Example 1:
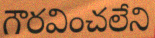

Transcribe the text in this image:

గౌరవించలేని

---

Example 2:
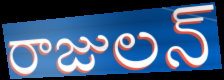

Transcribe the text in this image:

రాజులన్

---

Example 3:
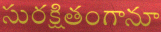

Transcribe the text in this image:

సురక్షితంగానూ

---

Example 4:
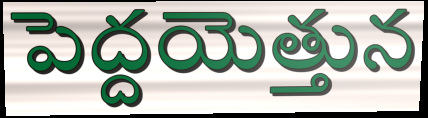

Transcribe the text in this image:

పెద్దయెత్తున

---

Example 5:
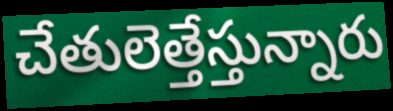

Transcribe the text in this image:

చేతులెత్తేస్తున్నారు